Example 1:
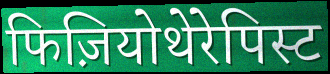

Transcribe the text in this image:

फिज़ियोथेरेपिस्ट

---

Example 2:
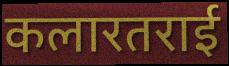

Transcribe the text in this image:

कलारतराई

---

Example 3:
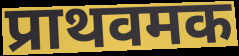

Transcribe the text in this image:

प्राथवमक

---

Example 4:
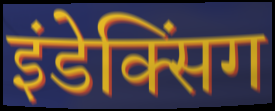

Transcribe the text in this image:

इंडेक्सिंग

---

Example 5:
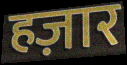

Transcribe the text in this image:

हज़ार